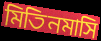
মিতিনমাসি